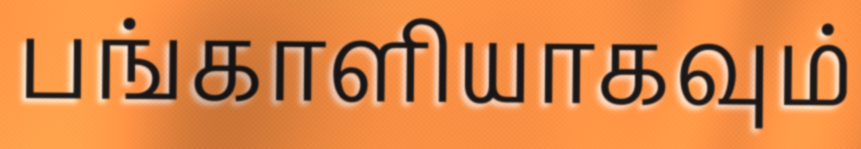
பங்காளியாகவும்